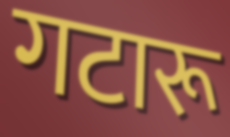
गटारू